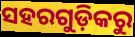
ସହରଗୁଡ଼ିକରୁ